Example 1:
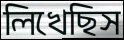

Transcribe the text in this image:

লিখেছিস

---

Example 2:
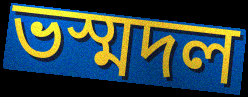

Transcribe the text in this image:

ভস্মদল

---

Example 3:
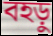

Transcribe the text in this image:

বহড়ু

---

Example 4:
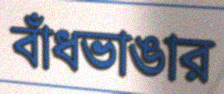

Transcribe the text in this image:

বাঁধভাঙার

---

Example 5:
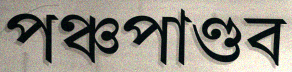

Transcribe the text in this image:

পঞ্চপাণ্ডব